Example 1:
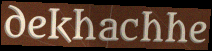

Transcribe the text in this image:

dekhachhe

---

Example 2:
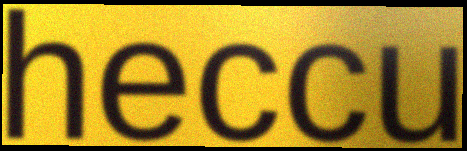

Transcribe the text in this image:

heccu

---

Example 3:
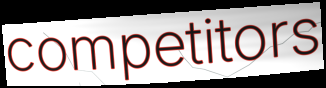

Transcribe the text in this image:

competitors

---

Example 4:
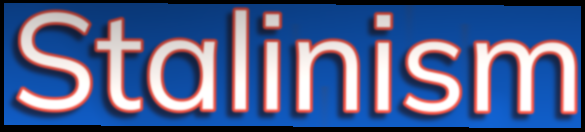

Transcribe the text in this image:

Stalinism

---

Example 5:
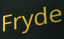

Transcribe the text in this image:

Fryde